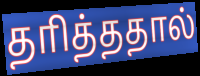
தரித்ததால்